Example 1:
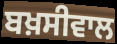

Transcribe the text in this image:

ਬਖ਼ਸੀਵਾਲ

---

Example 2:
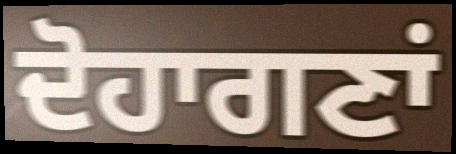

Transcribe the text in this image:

ਦੋਹਾਗਣਾਂ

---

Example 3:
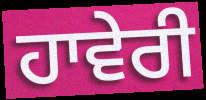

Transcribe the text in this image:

ਹਾਵੇਰੀ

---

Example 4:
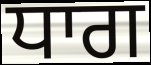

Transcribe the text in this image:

ਧਾਗ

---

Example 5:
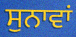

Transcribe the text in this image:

ਸੁਨਾਵਾਂ